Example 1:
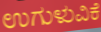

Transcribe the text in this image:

ಉಗುಳುವಿಕೆ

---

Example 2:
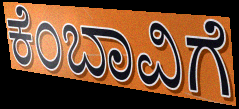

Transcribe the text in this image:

ಕೆಂಬಾವಿಗೆ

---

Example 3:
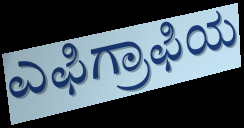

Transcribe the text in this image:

ಎಫಿಗ್ರಾಫಿಯ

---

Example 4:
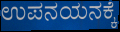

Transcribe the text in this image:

ಉಪನಯನಕ್ಕೆ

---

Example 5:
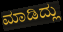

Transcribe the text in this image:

ಮಾಡಿದ್ಲು